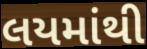
લયમાંથી